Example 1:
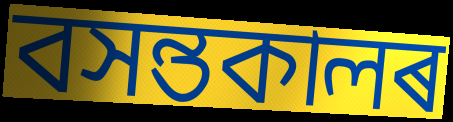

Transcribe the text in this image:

বসন্তকালৰ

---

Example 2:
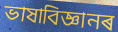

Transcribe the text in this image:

ভাষাবিজ্ঞানৰ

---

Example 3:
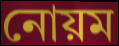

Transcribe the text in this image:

নোয়ম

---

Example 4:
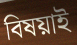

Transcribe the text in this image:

বিষয়াই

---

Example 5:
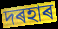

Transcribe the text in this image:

দৰহাৰ